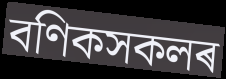
বণিকসকলৰ